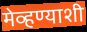
मेव्हण्याशी